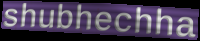
shubhechha